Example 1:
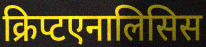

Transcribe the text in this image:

क्रिप्टएनालिसिस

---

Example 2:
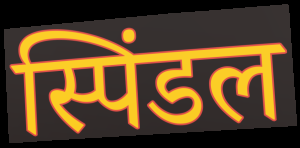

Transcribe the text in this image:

स्पिंडल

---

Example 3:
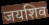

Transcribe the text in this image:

जयशिव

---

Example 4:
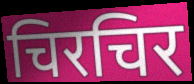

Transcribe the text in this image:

चिरचिर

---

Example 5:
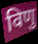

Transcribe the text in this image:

विणु